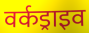
वर्कड्राइव